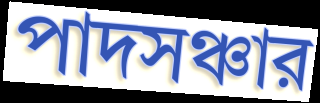
পাদসঞ্চার